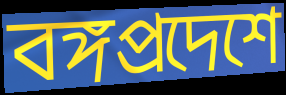
বঙ্গপ্রদেশে